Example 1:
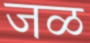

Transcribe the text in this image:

जळ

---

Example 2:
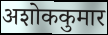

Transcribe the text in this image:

अशोककुमार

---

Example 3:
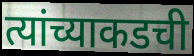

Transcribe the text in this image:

त्यांच्याकडची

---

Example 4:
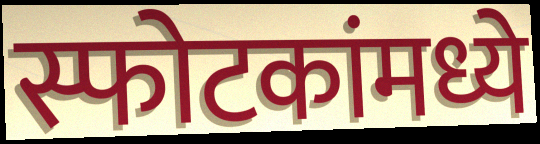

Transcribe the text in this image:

स्फोटकांमध्ये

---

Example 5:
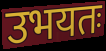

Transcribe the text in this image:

उभयतः